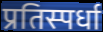
प्रतिस्पर्धा